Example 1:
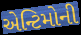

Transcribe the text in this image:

એન્ટિમોની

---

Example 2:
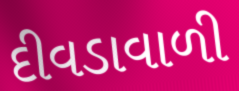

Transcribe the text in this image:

દીવડાવાળી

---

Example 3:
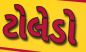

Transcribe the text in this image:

ટોલેડો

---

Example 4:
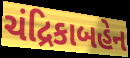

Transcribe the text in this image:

ચંદ્રિકાબહેન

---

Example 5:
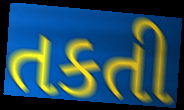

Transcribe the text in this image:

તકતી